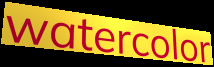
watercolor